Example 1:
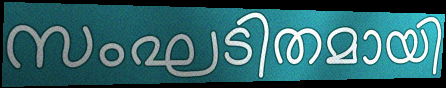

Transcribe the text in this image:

സംഘടിതമായി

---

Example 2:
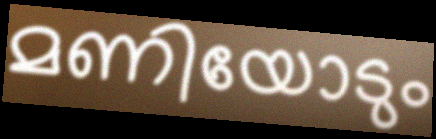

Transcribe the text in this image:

മണിയോടും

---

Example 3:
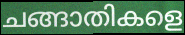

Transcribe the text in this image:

ചങ്ങാതികളെ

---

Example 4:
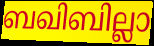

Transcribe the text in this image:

ബഖിബില്ലാ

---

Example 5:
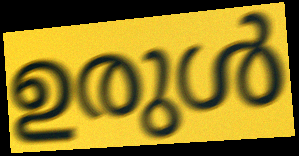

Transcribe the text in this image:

ഉരുൾ